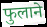
फुलाने